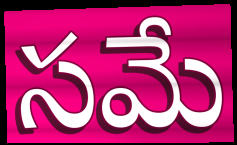
సమే